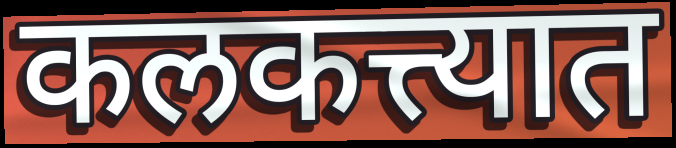
कलकत्त्यात